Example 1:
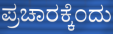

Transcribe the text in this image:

ಪ್ರಚಾರಕ್ಕೆಂದು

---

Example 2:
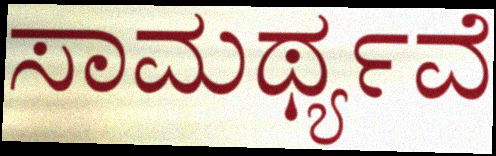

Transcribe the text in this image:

ಸಾಮರ್ಥ್ಯವೆ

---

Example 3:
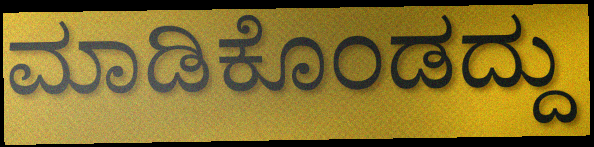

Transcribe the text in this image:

ಮಾಡಿಕೊಂಡದ್ದು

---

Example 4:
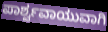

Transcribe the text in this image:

ಪಾರ್ಶ್ವವಾಯುವಾಗಿ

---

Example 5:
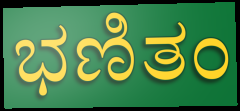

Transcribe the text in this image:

ಭಣಿತಂ